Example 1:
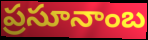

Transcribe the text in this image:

ప్రసూనాంబ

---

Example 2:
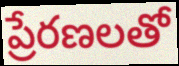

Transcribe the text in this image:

ప్రేరణలతో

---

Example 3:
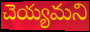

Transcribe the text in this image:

చెయ్యమని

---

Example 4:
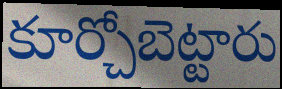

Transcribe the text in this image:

కూర్చోబెట్టారు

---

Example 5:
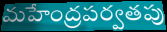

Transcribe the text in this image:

మహేంద్రపర్వతపు